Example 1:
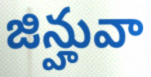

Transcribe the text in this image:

జిన్హువా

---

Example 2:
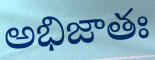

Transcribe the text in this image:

అభిజాతః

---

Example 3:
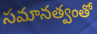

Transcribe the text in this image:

సమానత్వంతో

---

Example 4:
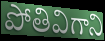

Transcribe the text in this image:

పోతివిగాని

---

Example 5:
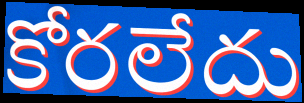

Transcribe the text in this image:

కోరలేదు